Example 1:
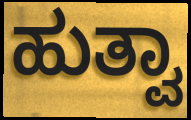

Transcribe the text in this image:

ಹುತ್ವಾ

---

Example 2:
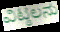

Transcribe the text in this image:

ವಿಟ್ಠಲನು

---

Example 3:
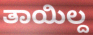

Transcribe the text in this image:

ತಾಯಿಲ್ದ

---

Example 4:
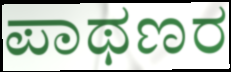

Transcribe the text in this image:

ಪಾಥಣರ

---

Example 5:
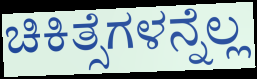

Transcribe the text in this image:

ಚಿಕಿತ್ಸೆಗಳನ್ನೆಲ್ಲ